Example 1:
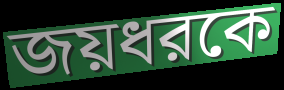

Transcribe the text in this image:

জয়ধরকে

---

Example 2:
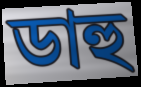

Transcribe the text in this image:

ডাহু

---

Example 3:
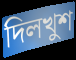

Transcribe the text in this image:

দিলখুশ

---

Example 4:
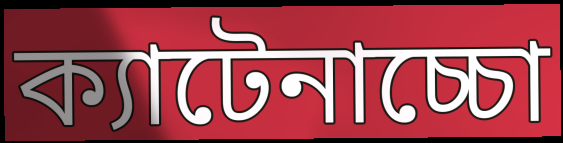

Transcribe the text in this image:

ক্যাটেনাচ্চো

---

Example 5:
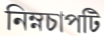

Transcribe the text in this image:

নিম্নচাপটি